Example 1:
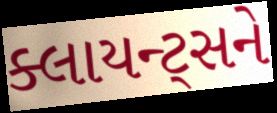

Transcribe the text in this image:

ક્લાયન્ટ્સને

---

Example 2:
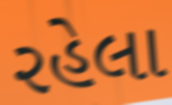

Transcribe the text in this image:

રહેલા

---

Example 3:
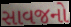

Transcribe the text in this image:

સાવજનો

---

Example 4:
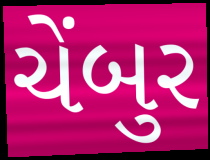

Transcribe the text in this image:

ચેંબુર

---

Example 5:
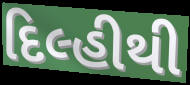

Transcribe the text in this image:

દિલ્હીથી